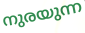
നുരയുന്ന